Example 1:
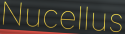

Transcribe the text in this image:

Nucellus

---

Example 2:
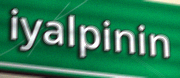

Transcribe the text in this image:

iyalpinin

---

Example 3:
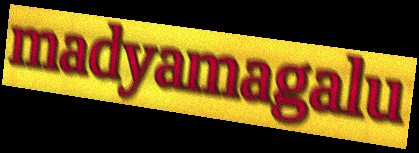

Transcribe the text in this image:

madyamagalu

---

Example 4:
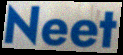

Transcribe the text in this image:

Neet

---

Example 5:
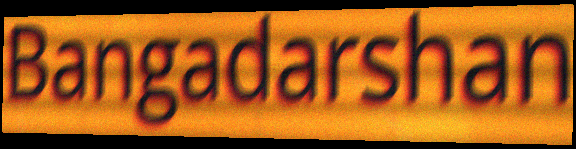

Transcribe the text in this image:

Bangadarshan